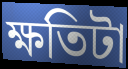
ক্ষতিটা